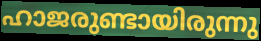
ഹാജരുണ്ടായിരുന്നു